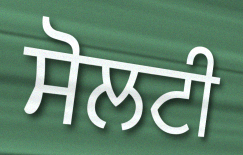
ਸੋਲਟੀ